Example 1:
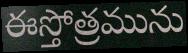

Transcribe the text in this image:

ఈస్తోత్రమును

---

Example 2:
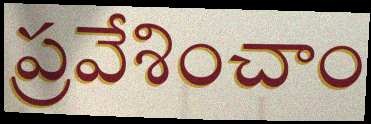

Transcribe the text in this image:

ప్రవేశించాం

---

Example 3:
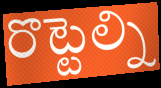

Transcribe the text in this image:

రొట్టెల్ని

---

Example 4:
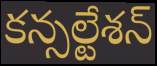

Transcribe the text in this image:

కన్సల్టేశన్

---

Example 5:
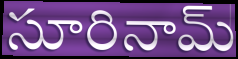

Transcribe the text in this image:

సూరినామ్